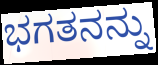
ಭಗತನನ್ನು